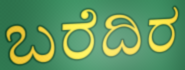
ಬರೆದಿರ